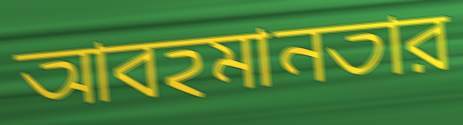
আবহমানতার